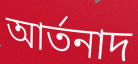
আৰ্তনাদ